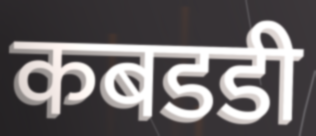
कबडडी